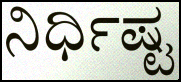
ನಿರ್ಧಿಷ್ಟ